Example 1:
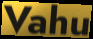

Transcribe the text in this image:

Vahu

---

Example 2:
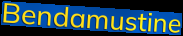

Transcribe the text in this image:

Bendamustine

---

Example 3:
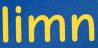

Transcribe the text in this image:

limn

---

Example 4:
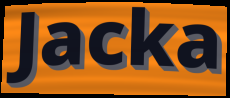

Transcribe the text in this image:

Jacka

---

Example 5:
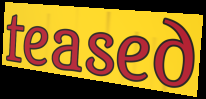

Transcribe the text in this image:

teased